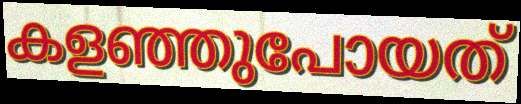
കളഞ്ഞുപോയത്